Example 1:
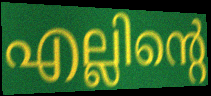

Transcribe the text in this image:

എല്ലിന്റെ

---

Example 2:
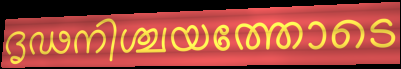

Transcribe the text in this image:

ദൃഢനിശ്ചയത്തോടെ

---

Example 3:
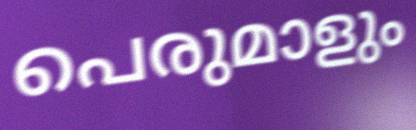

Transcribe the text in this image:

പെരുമാളും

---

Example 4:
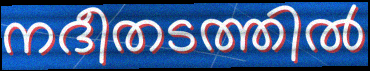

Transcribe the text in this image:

നദീതടത്തിൽ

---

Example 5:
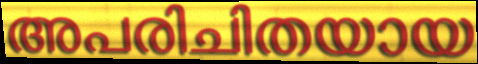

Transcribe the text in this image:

അപരിചിതയായ